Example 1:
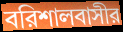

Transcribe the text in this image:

বরিশালবাসীর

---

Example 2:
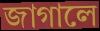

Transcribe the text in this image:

জাগালে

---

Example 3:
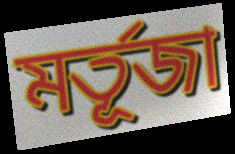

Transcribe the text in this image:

মর্তূজা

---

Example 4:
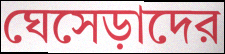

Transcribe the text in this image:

ঘেসেড়াদের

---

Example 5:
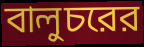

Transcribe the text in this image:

বালুচরের